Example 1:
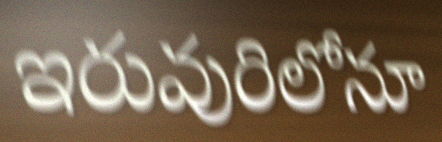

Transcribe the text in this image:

ఇరువురిలోనూ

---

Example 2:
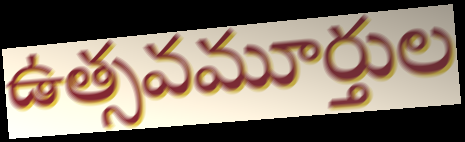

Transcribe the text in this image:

ఉత్సవమూర్తుల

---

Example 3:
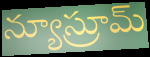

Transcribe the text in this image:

న్యూస్రూమ్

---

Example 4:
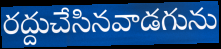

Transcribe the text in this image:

రద్దుచేసినవాడగును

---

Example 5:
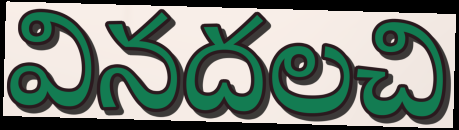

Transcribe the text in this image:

వినదలచి